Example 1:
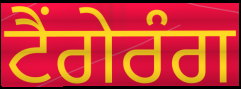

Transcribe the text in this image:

ਟੈਂਗੇਰੰਗ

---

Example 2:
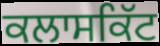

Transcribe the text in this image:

ਕਲਾਸਕਿੱਟ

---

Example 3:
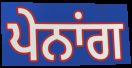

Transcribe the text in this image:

ਪੇਨਾਂਗ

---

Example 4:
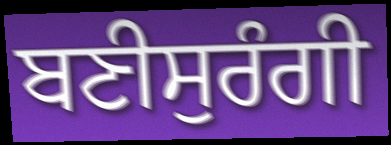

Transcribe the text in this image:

ਬਣੀਸੁਰੰਗੀ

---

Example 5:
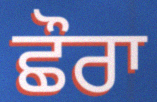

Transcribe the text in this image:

ਛੌਰਾ